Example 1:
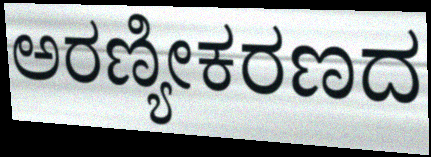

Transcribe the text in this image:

ಅರಣ್ಯೀಕರಣದ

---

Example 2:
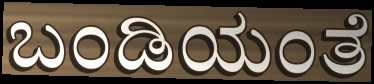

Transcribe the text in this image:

ಬಂಡಿಯಂತೆ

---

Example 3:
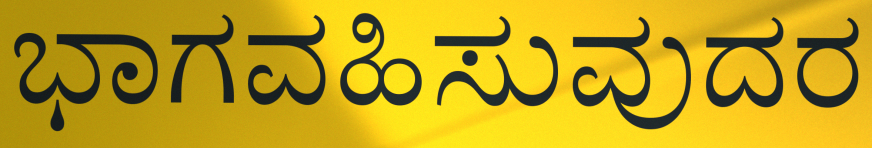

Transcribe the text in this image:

ಭಾಗವಹಿಸುವುದರ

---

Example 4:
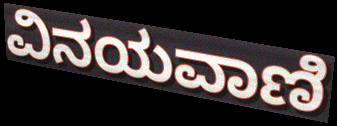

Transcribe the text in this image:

ವಿನಯವಾಣಿ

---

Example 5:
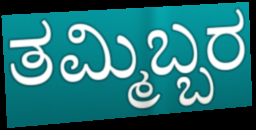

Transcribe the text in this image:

ತಮ್ಮಿಬ್ಬರ